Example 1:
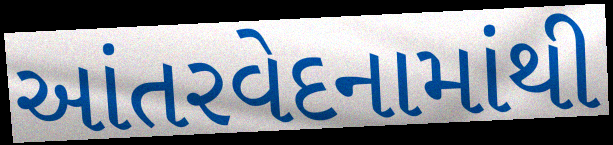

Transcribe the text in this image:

આંતરવેદનામાંથી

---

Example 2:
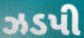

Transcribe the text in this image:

ઝડપી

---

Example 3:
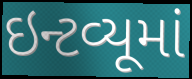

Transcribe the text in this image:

ઇન્ટવ્યૂમાં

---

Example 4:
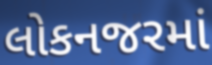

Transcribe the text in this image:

લોકનજરમાં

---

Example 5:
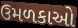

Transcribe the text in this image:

ઉમળકાઓ